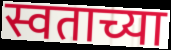
स्वताच्या